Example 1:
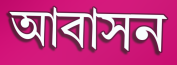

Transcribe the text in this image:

আবাসন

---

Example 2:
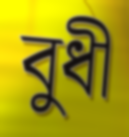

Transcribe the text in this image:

বুধী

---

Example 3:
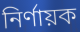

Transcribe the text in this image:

নির্ণায়ক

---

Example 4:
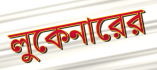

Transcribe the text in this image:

লুকেনারের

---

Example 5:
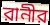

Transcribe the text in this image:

রানীর